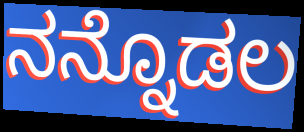
ನನ್ನೊಡಲ